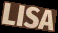
LISA